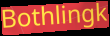
Bothlingk